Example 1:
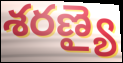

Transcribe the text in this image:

శరణ్యై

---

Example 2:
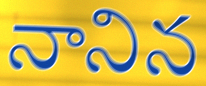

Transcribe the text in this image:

నానిన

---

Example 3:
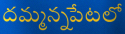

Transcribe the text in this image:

దమ్మన్నపేటలో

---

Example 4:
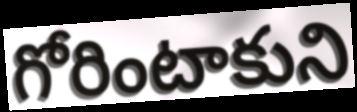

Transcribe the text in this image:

గోరింటాకుని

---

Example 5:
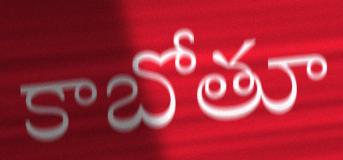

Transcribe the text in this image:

కాబోతూ